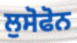
ਲੁਸੋਫੋਨ